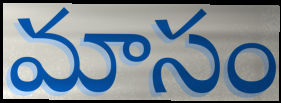
మాసం